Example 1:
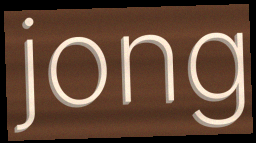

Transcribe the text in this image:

jong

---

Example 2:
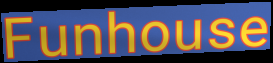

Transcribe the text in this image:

Funhouse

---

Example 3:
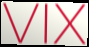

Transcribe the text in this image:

VIX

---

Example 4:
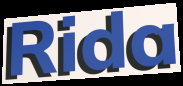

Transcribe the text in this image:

Rida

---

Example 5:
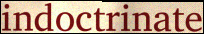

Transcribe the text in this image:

indoctrinate